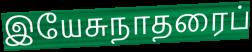
இயேசுநாதரைப்